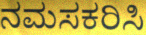
ನಮಸಕರಿಸಿ